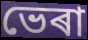
ভেৰা